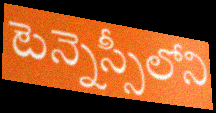
టెన్నెస్సీలోని